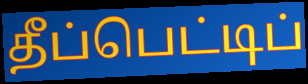
தீப்பெட்டிப்